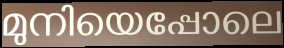
മുനിയെപ്പോലെ